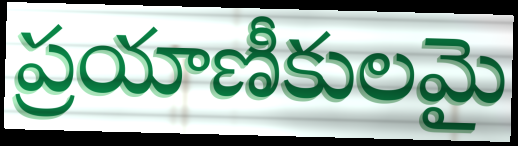
ప్రయాణీకులమై